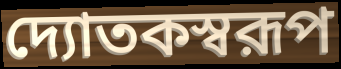
দ্যোতকস্বরূপ